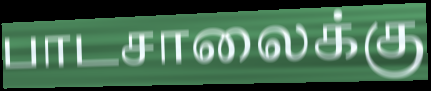
பாடசாலைக்கு